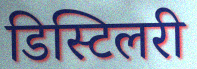
डिस्टिलरी